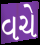
વચે